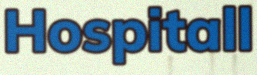
Hospitall